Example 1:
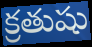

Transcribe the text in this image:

క్రతుషు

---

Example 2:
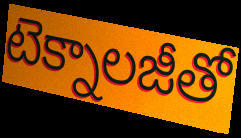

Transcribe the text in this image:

టెక్నాలజీతో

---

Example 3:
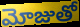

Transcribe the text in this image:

మోజుతో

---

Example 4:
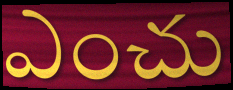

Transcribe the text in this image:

ఎంచు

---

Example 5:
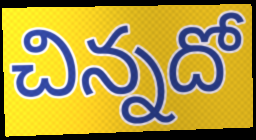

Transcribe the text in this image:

చిన్నదో